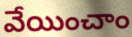
వేయించాం